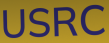
USRC